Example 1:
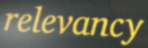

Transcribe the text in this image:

relevancy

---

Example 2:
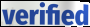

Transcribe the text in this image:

verified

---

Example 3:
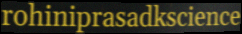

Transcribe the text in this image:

rohiniprasadkscience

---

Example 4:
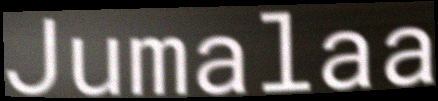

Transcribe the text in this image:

Jumalaa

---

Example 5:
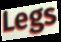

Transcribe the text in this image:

Legs